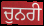
ਚੁਨਰੀ